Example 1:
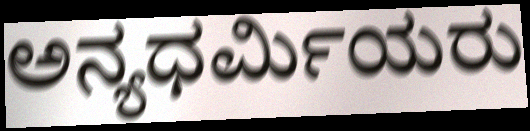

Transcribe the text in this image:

ಅನ್ಯಧರ್ಮಿಯರು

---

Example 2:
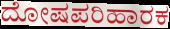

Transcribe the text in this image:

ದೋಷಪರಿಹಾರಕ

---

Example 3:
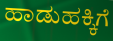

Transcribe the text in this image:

ಹಾಡುಹಕ್ಕಿಗೆ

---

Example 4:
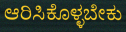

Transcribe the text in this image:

ಆರಿಸಿಕೊಳ್ಳಬೇಕು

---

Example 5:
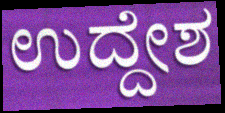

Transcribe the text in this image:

ಉದ್ದೇಶ